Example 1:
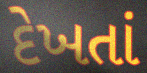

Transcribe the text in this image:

દેખતાં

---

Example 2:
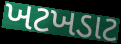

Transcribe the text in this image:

ખટખડાટ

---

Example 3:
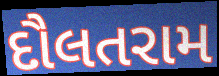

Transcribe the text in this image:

દૌલતરામ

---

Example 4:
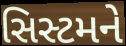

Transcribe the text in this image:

સિસ્ટમને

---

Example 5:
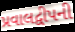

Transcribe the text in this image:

પ્રવાલદ્વીપની